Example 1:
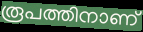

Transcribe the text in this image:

രൂപത്തിനാണ്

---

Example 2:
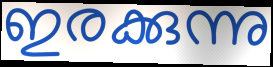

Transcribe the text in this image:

ഇരക്കുന്നു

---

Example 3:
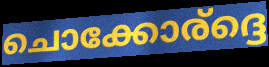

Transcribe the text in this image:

ചൊക്കോര്ദ്ദെ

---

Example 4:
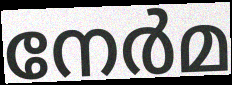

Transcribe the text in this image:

നേർമ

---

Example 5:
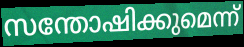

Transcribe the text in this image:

സന്തോഷിക്കുമെന്ന്